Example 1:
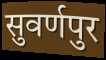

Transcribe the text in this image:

सुवर्णपुर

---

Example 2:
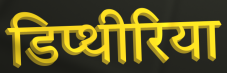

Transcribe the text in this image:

डिप्थीरिया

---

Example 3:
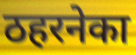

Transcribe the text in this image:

ठहरनेका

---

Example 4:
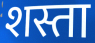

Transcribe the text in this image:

शस्ता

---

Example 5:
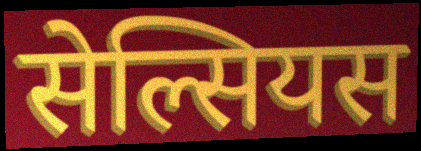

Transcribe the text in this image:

सेल्सियस